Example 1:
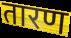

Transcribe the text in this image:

तारण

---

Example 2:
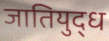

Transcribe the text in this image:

जातियुद्ध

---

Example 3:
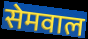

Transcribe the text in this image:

सेमवाल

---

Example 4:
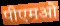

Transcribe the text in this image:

पीएमओ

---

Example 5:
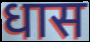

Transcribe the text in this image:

धास